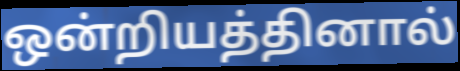
ஒன்றியத்தினால்